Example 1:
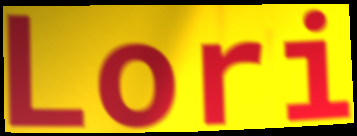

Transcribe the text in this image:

Lori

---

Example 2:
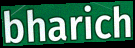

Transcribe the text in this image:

bharich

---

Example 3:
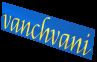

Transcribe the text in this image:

vanchvani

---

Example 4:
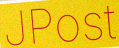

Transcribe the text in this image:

JPost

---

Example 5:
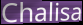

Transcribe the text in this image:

Chalisa